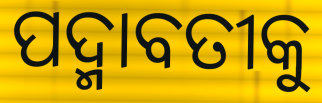
ପଦ୍ମାବତୀକୁ